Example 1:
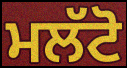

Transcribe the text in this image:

ਮਲੱਟੋ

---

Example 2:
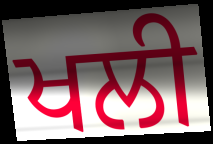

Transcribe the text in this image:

ਖਲੀ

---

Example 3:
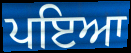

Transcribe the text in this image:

ਪਇਆ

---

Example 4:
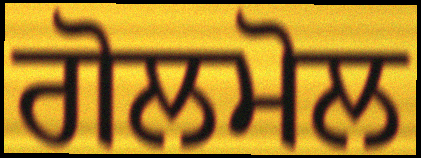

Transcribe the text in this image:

ਗੋਲਮੋਲ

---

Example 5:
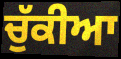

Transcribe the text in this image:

ਚੁੱਕੀਆ